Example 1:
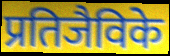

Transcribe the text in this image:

प्रतिजैविके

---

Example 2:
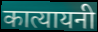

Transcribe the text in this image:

कात्यायनी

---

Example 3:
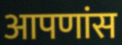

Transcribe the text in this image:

आपणांस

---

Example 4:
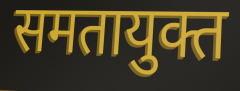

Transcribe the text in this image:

समतायुक्त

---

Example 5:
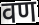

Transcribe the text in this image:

वण